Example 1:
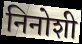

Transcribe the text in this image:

निनोशी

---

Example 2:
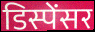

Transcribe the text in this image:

डिस्पेंसर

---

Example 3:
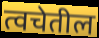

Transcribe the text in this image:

त्वचेतील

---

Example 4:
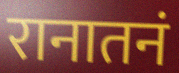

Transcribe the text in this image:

रानातनं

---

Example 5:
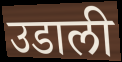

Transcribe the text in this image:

उडाली